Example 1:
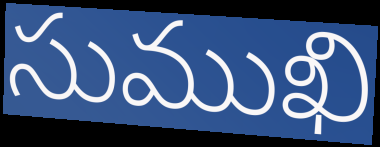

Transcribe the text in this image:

సుముఖి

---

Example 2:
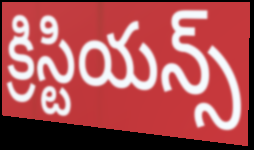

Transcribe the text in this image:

క్రిస్టియన్స్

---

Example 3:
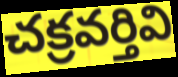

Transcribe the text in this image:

చక్రవర్తివి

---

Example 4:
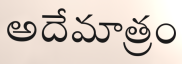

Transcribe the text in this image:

అదేమాత్రం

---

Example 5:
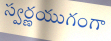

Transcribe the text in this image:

స్వర్ణయుగంగా